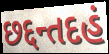
છદ્દન્તદહં